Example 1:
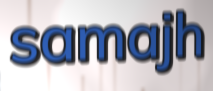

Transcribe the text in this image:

samajh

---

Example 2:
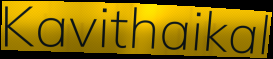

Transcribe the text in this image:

Kavithaikal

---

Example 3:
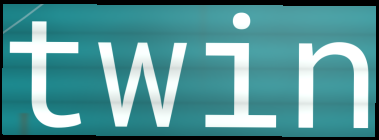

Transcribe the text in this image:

twin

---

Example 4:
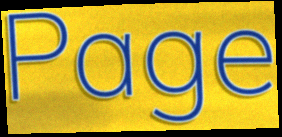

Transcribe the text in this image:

Page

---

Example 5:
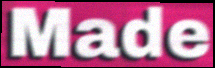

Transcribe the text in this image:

Made